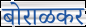
बोराळकर